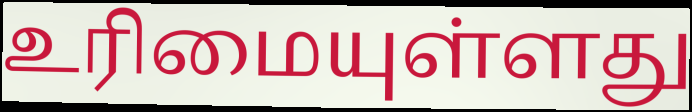
உரிமையுள்ளது